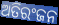
ଅତିରଂଜନ